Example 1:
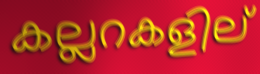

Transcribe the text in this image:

കല്ലറകളില്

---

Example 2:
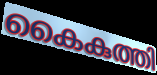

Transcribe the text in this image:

കൈകുത്തി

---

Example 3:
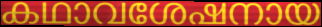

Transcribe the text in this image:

കഥാവശേഷനായ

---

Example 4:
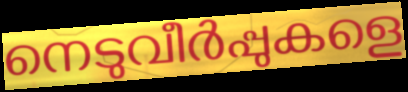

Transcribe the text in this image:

നെടുവീർപ്പുകളെ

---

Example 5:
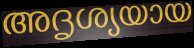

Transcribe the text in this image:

അദൃശ്യയായ